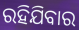
ରହିଯିବାର